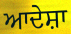
ਆਦੇਸ਼ਾ